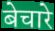
बेचारे